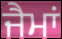
ਜੈਮਾਂ